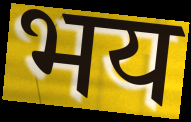
भय